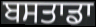
ਬਸਤਾਡਾ